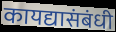
कायद्यासंबंधी